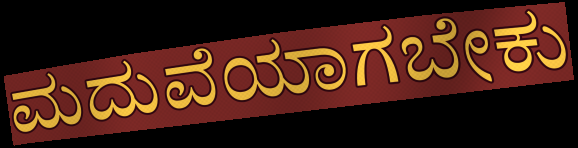
ಮದುವೆಯಾಗಬೇಕು